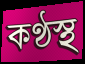
কণ্ঠস্থ